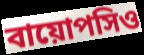
বায়োপসিও